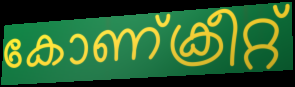
കോണ്ക്രീറ്റ്